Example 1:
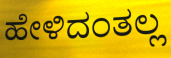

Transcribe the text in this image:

ಹೇಳಿದಂತಲ್ಲ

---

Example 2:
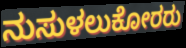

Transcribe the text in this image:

ನುಸುಳಲುಕೋರರು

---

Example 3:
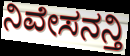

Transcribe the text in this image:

ನಿವೇಸನನ್ತಿ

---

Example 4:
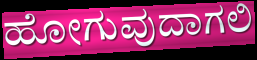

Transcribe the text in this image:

ಹೋಗುವುದಾಗಲಿ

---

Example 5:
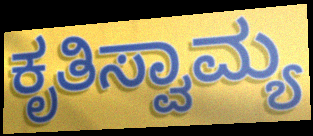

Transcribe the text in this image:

ಕೃತಿಸ್ವಾಮ್ಯ